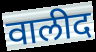
वालीद